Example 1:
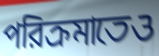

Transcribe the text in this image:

পরিক্রমাতেও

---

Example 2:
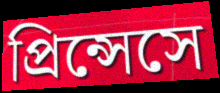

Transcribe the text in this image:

প্রিন্সেসে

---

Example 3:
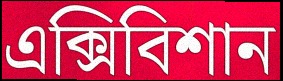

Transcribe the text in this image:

এক্সিবিশান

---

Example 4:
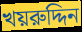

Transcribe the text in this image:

খয়রুদ্দিন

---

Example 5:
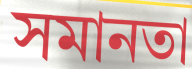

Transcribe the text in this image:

সমানতা